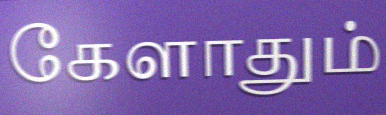
கேளாதும்